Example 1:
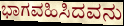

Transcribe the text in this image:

ಭಾಗವಹಿಸಿದವನು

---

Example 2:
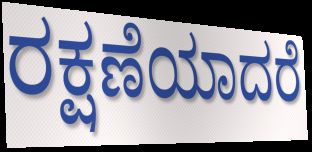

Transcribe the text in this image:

ರಕ್ಷಣೆಯಾದರೆ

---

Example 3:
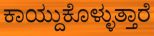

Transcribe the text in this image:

ಕಾಯ್ದುಕೊಳ್ಳುತ್ತಾರೆ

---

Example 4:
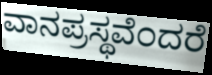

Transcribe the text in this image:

ವಾನಪ್ರಸ್ಥವೆಂದರೆ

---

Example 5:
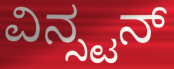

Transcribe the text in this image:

ವಿನ್ಸ್ಟನ್